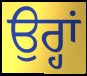
ਉਰ੍ਹਾਂ